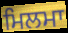
ਮਿਲਮਾ